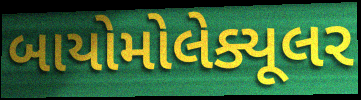
બાયોમોલેક્યૂલર